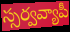
స్సర్వవ్యాపీ